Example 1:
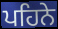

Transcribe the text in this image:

ਪਹਿਨੇ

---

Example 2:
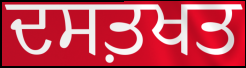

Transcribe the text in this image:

ਦਸਤ਼ਖਤ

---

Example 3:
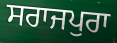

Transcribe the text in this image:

ਸਰਾਜਪੁਰਾ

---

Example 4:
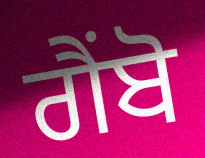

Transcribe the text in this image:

ਗੈਂਬੋ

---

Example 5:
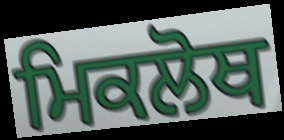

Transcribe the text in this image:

ਮਿਕਲੋਥ